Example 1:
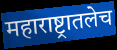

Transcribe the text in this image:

महाराष्ट्रातलेच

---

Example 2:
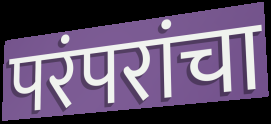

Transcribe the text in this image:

परंपरांचा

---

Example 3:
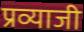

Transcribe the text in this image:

प्रव्याजी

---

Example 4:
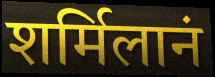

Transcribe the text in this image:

शर्मिलानं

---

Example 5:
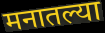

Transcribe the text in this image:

मनातल्या